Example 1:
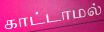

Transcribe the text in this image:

காட்டாமல்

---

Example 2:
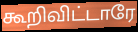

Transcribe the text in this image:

கூறிவிட்டாரே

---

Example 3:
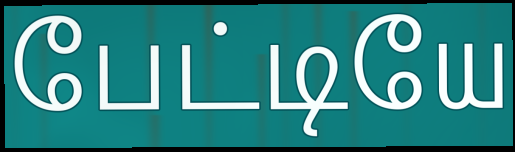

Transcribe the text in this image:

பேட்டியே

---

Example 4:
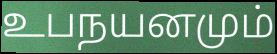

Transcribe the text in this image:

உபநயனமும்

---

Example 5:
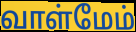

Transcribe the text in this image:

வாள்மேம்